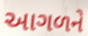
આગળને